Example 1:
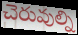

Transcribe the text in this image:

చెరువుల్ని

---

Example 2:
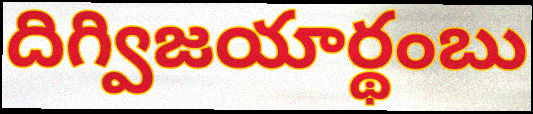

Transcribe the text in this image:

దిగ్విజయార్థంబు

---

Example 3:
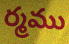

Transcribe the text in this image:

ర్మము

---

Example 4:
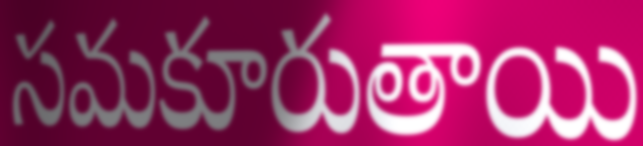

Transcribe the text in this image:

సమకూరుతాయి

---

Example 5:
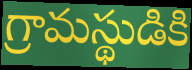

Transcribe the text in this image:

గ్రామస్థుడికి